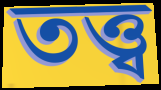
তত্ত্ব